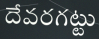
దేవరగట్టు